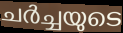
ചർച്ചയുടെ